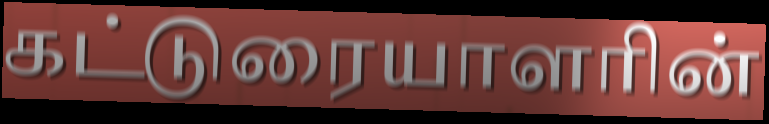
கட்டுரையாளரின்